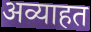
अव्याहत